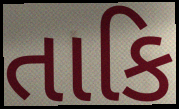
તાકિ